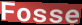
Fosse